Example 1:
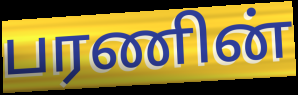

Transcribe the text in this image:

பரணின்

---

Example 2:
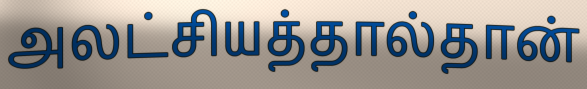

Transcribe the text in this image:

அலட்சியத்தால்தான்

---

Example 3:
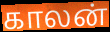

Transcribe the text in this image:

காலன்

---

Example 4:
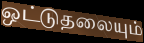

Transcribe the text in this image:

ஒட்டுதலையும்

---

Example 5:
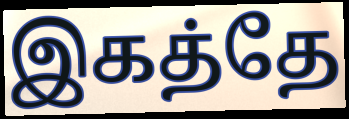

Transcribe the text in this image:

இகத்தே